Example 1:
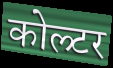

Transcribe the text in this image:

कोल्टर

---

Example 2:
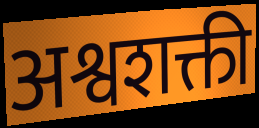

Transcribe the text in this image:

अश्वशक्ती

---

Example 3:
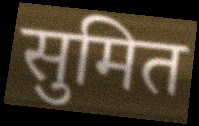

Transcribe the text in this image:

सुमित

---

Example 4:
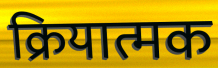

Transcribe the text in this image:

क्रियात्मक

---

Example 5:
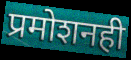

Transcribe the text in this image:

प्रमोशनही